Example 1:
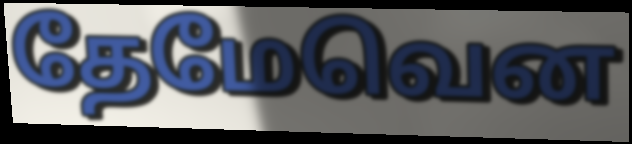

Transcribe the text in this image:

தேமேவென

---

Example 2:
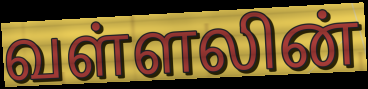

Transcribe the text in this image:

வள்ளலின்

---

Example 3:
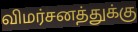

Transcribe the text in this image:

விமர்சனத்துக்கு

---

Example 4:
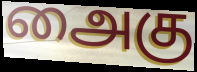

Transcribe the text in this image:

அைகு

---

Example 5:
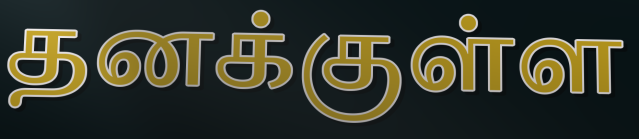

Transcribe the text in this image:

தனக்குள்ள